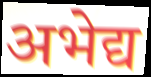
अभेद्य